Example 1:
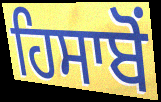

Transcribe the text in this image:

ਹਿਸਾਬੋਂ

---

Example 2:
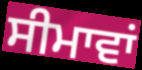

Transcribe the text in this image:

ਸੀਮਾਵਾਂ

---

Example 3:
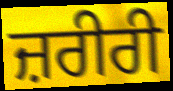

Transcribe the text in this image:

ਜ਼ਰੀਰੀ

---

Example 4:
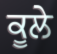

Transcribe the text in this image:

ਕੂਲੇ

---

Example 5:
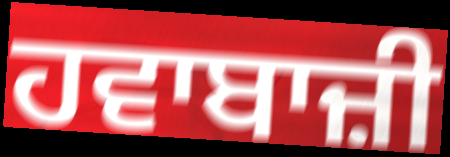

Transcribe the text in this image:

ਹਵਾਬਾਜ਼ੀ